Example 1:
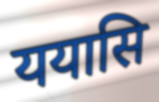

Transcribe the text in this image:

ययासि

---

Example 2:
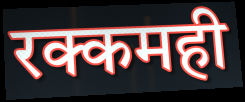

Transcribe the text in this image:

रक्कमही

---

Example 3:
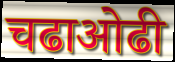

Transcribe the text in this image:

चढाओढी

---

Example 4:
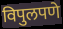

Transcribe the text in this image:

विपुलपणे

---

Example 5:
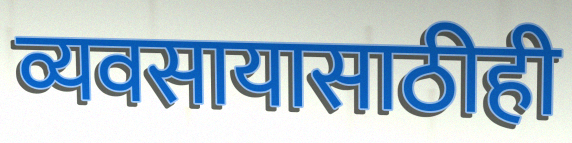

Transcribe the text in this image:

व्यवसायासाठीही